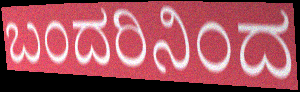
ಬಂದರಿನಿಂದ